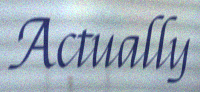
Actually